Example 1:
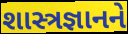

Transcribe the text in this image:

શાસ્ત્રજ્ઞાનને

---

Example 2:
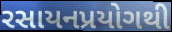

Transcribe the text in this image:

રસાયનપ્રયોગથી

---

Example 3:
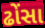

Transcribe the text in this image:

ઢોંસા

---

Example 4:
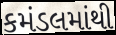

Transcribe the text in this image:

કમંડલમાંથી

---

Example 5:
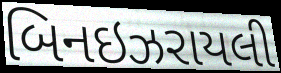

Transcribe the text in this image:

બિનઇઝરાયલી